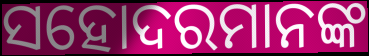
ସହୋଦରମାନଙ୍କ